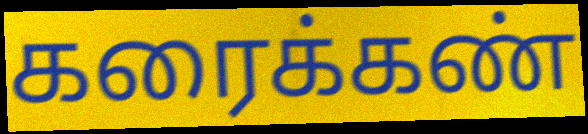
கரைக்கண்